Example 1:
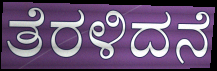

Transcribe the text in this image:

ತೆರಳಿದನೆ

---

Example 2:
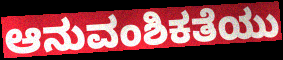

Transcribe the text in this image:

ಆನುವಂಶಿಕತೆಯು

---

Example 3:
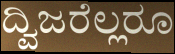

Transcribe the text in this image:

ದ್ವಿಜರೆಲ್ಲರೂ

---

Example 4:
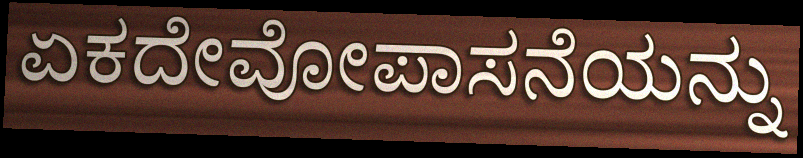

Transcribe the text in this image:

ಏಕದೇವೋಪಾಸನೆಯನ್ನು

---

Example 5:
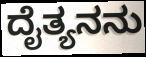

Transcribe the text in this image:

ದೈತ್ಯನನು